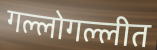
गल्लोगल्लीत